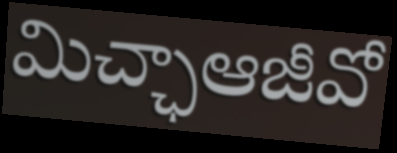
మిచ్ఛాఆజీవో